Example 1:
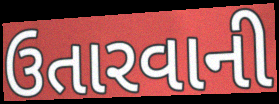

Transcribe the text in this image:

ઉતારવાની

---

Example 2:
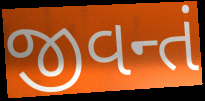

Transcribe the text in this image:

જીવન્તં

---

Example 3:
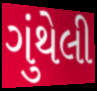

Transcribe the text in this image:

ગુંથેલી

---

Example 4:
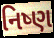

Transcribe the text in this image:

નિષ્ણ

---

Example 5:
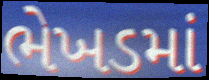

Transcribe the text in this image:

ભેખડમાં